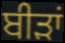
ਬੀੜਾਂ